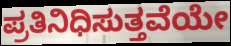
ಪ್ರತಿನಿಧಿಸುತ್ತವೆಯೇ